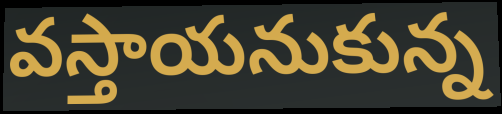
వస్తాయనుకున్న